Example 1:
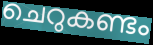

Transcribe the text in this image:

ചെറുകണ്ടം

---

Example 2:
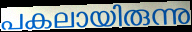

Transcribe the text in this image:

പകലായിരുന്നു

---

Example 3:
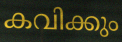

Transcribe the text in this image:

കവിക്കും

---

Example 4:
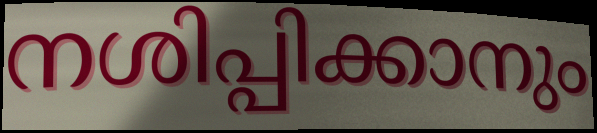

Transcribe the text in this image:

നശിപ്പിക്കാനും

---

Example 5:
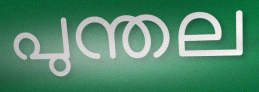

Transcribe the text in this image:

പുന്തല